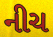
નીચ